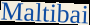
Maltibai